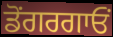
ਡੋਂਗਰਗਾਓਂ